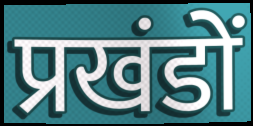
प्रखंडों